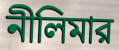
নীলিমার